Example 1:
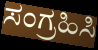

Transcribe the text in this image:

ಸಂಗ್ರಹಿಸಿ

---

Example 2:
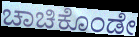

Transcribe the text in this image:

ಚಾಚಿಕೊಂಡೇ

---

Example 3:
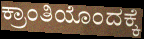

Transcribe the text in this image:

ಕ್ರಾಂತಿಯೊಂದಕ್ಕೆ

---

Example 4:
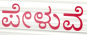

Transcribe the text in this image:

ಪೇಳುವೆ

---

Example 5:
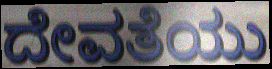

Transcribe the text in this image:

ದೇವತೆಯು